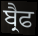
ਬ੍ਰੈਫ